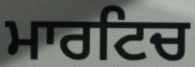
ਮਾਰਟਿਚ